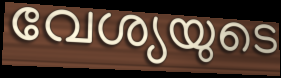
വേശ്യയുടെ